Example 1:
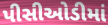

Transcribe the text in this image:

પીસીઓડીમાં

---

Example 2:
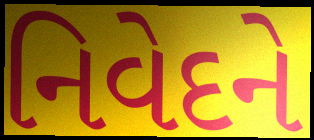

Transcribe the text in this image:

નિવેદને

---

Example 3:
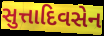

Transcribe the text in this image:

સુત્તાદિવસેન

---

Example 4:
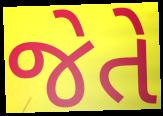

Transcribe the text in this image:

જેતે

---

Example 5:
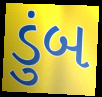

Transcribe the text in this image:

ડુંબ